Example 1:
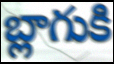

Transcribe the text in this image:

బ్లాగుకి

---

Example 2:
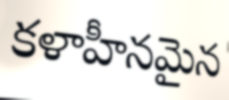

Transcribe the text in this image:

కళాహీనమైన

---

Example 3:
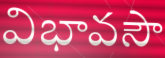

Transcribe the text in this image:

విభావసౌ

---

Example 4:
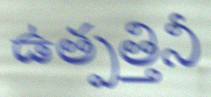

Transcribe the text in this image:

ఉత్పత్తినీ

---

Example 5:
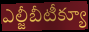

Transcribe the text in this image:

ఎల్జీబీటీక్యూ